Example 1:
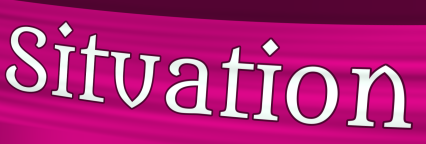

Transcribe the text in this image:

Situation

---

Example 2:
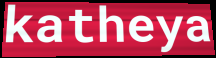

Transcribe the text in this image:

katheya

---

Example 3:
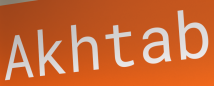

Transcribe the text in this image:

Akhtab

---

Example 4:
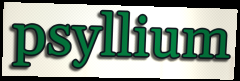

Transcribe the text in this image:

psyllium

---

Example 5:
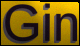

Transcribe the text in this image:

Gin